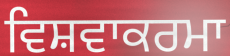
ਵਿਸ਼ਵਾਕਰਮਾ